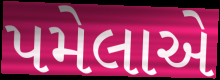
પમેલાએ